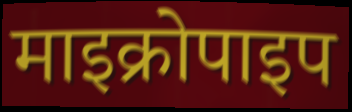
माइक्रोपाइप